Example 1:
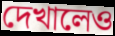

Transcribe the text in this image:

দেখালেও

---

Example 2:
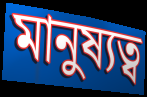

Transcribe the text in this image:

মানুষ্যত্ব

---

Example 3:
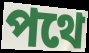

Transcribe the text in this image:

পথে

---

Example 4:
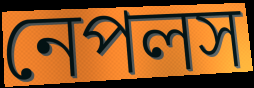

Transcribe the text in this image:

নেপলস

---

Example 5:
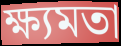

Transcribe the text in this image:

ক্ষ্যমতা